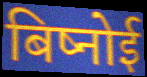
बिष्नोई